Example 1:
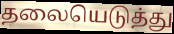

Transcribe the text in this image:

தலையெடுத்து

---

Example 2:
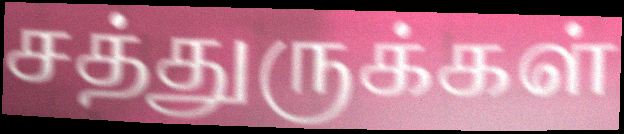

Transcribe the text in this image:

சத்துருக்கள்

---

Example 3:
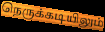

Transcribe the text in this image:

நெருக்கடியிலும்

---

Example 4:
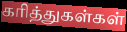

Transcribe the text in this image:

கரித்துகள்கள்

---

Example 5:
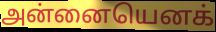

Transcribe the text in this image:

அன்னையெனக்